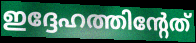
ഇദ്ദേഹത്തിന്റേത്